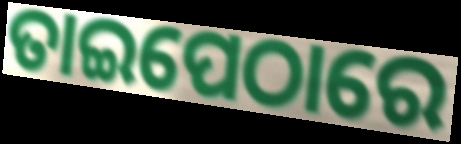
ତାଇପେଠାରେ